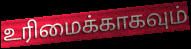
உரிமைக்காகவும்